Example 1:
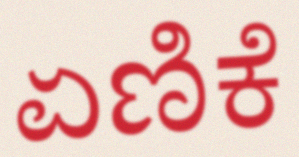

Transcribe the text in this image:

ಏಣಿಕೆ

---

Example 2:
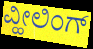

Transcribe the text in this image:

ವ್ಹೀಲಿಂಗ್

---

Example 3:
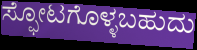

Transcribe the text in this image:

ಸ್ಫೋಟಗೊಳ್ಳಬಹುದು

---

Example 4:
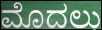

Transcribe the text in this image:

ಮೊದಲು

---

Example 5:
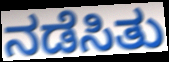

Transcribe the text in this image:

ನಡೆಸಿತು